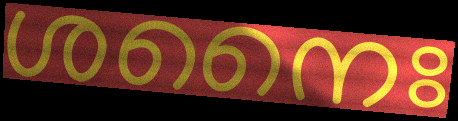
ശനൈഃ